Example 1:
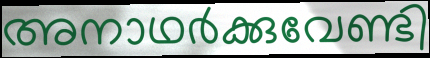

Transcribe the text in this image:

അനാഥർക്കുവേണ്ടി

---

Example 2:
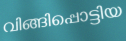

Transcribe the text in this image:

വിങ്ങിപ്പൊട്ടിയ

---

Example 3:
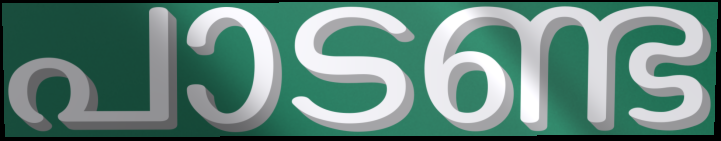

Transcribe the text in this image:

പാടണ്ട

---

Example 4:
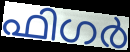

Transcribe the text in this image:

ഫിഗർ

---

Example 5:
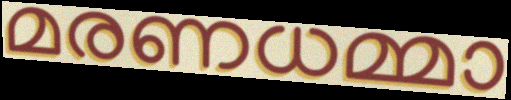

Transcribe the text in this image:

മരണധമ്മാ